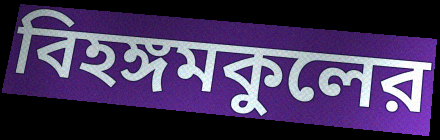
বিহঙ্গমকুলের